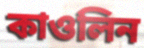
কাওলিন